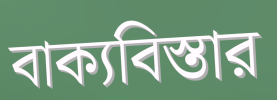
বাক্যবিস্তার